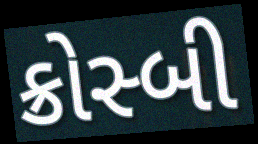
ક્રોસ્બી